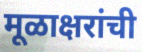
मूळाक्षरांची